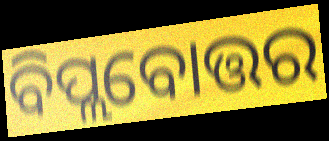
ବିପ୍ଲବୋତ୍ତର